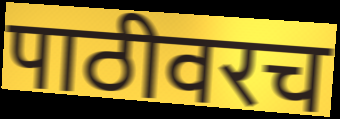
पाठीवरच